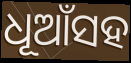
ଧୂଆଁସହ